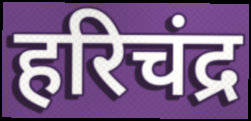
हरिचंद्र